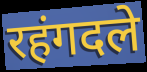
रहंगदले